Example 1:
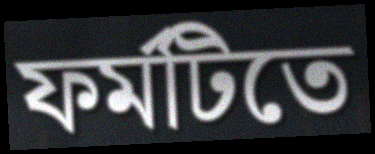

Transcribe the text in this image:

ফর্মটিতে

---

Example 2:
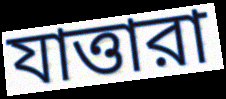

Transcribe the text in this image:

যাত্তারা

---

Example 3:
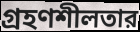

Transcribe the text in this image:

গ্রহণশীলতার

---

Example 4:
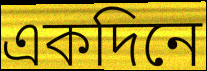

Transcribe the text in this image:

একদিনে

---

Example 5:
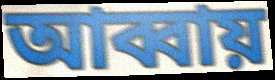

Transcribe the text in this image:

আব্বায়